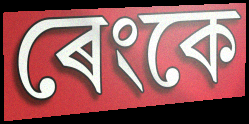
ৰেংকে